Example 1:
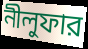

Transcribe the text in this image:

নীলুফার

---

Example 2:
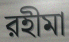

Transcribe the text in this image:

রহীমা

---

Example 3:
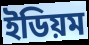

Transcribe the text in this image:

ইডিয়ম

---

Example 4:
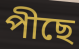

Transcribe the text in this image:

পীছে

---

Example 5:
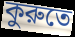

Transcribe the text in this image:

কুরুতে